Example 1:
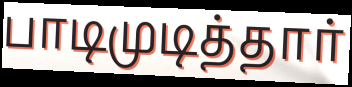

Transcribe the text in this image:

பாடிமுடித்தார்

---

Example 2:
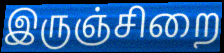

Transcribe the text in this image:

இருஞ்சிறை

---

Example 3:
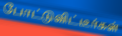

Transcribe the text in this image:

போட்டுவிட்டீர்கள்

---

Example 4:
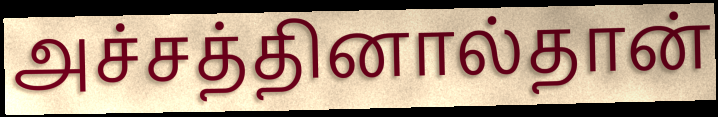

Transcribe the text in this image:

அச்சத்தினால்தான்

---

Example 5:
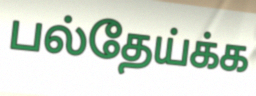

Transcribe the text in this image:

பல்தேய்க்க